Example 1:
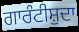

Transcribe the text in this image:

ਗਾਰੰਟੀਸ਼ੁਦਾ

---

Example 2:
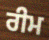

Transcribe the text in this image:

ਰੀਮ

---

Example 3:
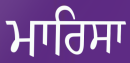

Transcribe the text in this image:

ਮਾਰਿਸਾ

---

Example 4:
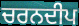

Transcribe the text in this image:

ਚਰਨਦੀਪ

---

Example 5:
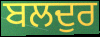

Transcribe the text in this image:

ਬਲਦੁਰ